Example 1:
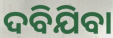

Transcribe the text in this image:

ଦବିଯିବା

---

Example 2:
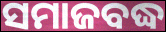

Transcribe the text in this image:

ସମାଜବଦ୍ଧ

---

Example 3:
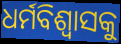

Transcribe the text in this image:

ଧର୍ମବିଶ୍ୱାସକୁ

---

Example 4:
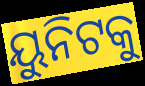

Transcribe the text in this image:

ୟୁନିଟକୁ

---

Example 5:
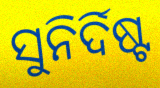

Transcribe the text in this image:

ସୁନିର୍ଦିଷ୍ଟ